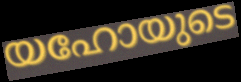
യഹോയുടെ